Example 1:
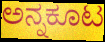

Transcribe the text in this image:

ಅನ್ನಕೂಟ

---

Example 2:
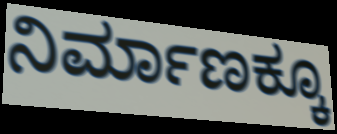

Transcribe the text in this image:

ನಿರ್ಮಾಣಕ್ಕೂ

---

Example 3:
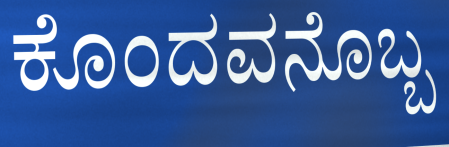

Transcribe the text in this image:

ಕೊಂದವನೊಬ್ಬ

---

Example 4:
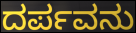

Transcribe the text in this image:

ದರ್ಪವನು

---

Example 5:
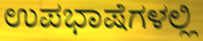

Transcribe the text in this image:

ಉಪಭಾಷೆಗಳಲ್ಲಿ